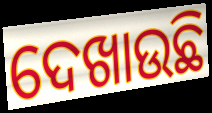
ଦେଖାଉଛି